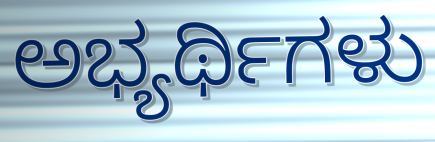
ಅಭ್ಯರ್ಥಿಗಳು